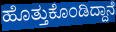
ಹೊತ್ತುಕೊಂಡಿದ್ದಾನೆ